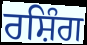
ਰਸ਼ਿੰਗ